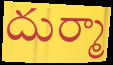
దుర్మా